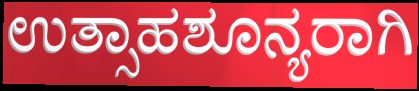
ಉತ್ಸಾಹಶೂನ್ಯರಾಗಿ